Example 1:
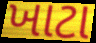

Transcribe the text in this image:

ખાટા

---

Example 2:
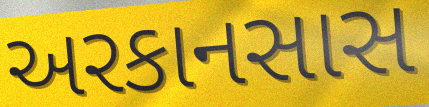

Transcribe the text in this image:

અરકાનસાસ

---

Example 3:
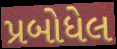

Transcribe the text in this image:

પ્રબોધેલ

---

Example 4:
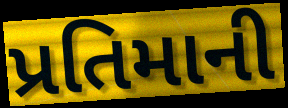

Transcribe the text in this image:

પ્રતિમાની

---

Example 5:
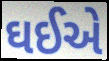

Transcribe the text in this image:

ઘઈએ